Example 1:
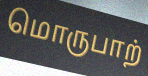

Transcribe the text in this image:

மொருபாற்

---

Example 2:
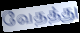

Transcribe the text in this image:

வேதத்து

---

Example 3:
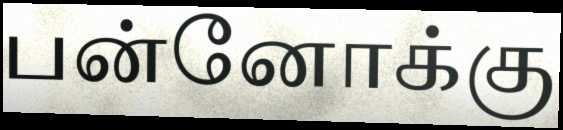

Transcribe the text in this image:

பன்னோக்கு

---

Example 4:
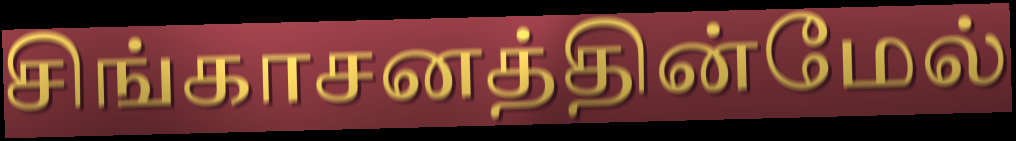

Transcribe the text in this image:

சிங்காசனத்தின்மேல்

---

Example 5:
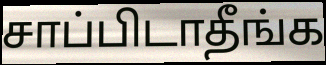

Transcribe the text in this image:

சாப்பிடாதீங்க